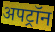
अपट्रॉन